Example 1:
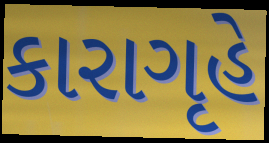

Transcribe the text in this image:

કારાગૃહે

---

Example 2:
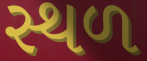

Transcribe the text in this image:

સ્થળ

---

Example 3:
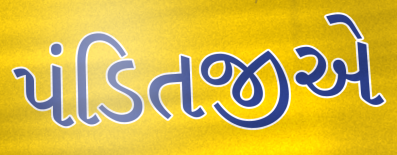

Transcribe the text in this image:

પંડિતજીએ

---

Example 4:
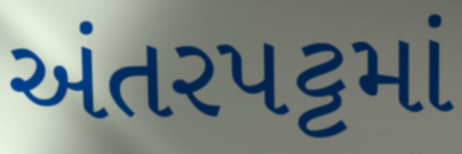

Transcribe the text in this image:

અંતરપટ્ટમાં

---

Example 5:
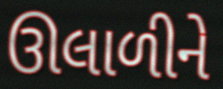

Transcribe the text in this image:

ઊલાળીને